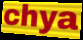
chya